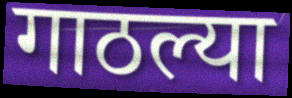
गाठल्या